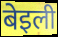
बेइली